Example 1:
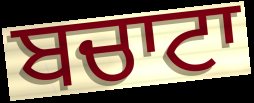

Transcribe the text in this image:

ਬਚਾਟਾ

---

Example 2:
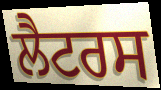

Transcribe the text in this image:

ਲੈਟਰਸ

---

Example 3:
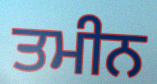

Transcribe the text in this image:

ਤਮੀਨ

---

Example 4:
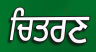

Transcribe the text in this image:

ਚਿਤਰਣ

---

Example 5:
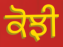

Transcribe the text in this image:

ਕੋਝੀ